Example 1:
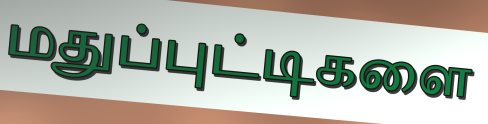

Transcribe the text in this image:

மதுப்புட்டிகளை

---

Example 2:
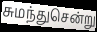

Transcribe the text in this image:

சுமந்துசென்று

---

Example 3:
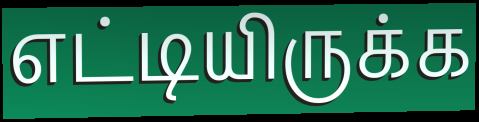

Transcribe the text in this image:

எட்டியிருக்க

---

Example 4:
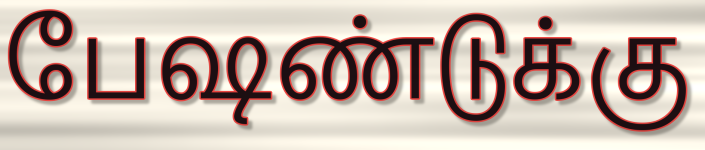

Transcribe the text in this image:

பேஷண்டுக்கு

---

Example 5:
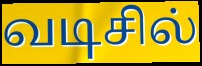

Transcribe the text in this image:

வடிசில்